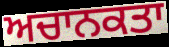
ਅਚਾਨਕਤਾ